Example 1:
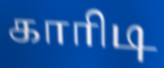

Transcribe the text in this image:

காரிடி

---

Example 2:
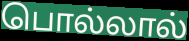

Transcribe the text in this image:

பொல்லால்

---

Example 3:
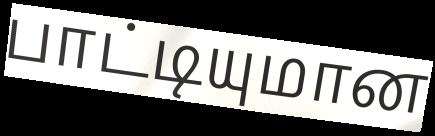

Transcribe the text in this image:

பாட்டியுமான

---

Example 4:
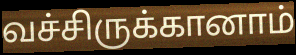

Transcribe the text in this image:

வச்சிருக்கானாம்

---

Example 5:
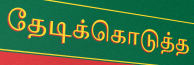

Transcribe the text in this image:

தேடிக்கொடுத்த